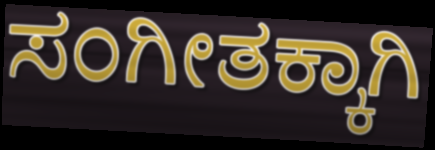
ಸಂಗೀತಕ್ಕಾಗಿ